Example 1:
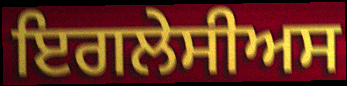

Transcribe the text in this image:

ਇਗਲੇਸੀਅਸ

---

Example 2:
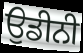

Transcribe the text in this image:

ਉਡੀਨੀ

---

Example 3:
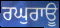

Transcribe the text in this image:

ਰਘੁਰਾਊ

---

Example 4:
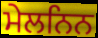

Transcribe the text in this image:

ਮੇਲਨਿਨ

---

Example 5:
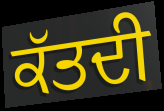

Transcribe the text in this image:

ਕੱਤਦੀ